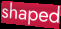
shaped